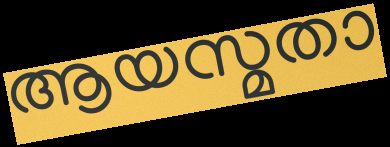
ആയസ്മതാ